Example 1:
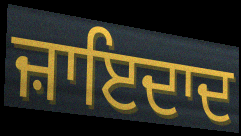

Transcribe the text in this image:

ਜ਼ਾਇਦਾਦ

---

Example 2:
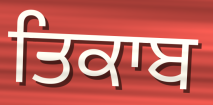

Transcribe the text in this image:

ਤਿਕਾਬ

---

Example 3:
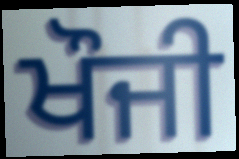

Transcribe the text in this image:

ਖੌਜੀ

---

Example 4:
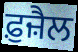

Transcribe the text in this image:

ਫ਼ੁਜ਼ੈਲ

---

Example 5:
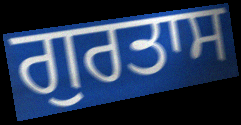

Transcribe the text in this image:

ਗੁਰਤਾਸ